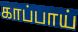
காப்பாய்